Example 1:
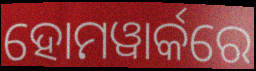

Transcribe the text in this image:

ହୋମୱାର୍କରେ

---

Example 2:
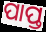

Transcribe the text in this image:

ପାପ୍ତ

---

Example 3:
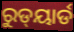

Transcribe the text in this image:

ରୁଡ୍‌ୟାର୍ଡ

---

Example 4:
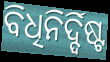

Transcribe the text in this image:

ବିଧିନିର୍ଦ୍ଦିଷ୍ଟ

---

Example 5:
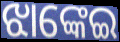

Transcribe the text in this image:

ଝାଙ୍କେଇ